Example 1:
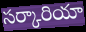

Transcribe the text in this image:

సర్కారియా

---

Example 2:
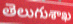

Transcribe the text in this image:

తెలుగుశాఖ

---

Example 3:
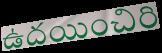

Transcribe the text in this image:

ఉదయించిరి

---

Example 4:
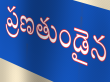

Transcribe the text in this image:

ప్రణతుండైన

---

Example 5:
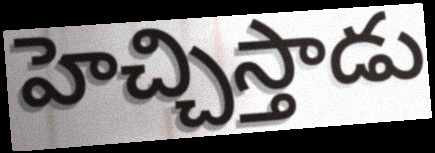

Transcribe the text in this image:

హెచ్చిస్తాడు